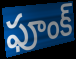
ఫూంక్